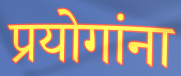
प्रयोगांना